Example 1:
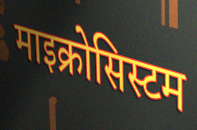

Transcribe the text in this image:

माइक्रोसिस्टम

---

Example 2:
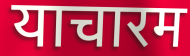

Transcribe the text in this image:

याचारम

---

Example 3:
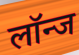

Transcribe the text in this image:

लॉन्ज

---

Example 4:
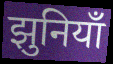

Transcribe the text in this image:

झुनियाँ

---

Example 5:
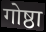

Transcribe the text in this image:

गोष्ठा